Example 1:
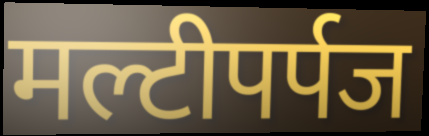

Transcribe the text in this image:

मल्टीपर्पज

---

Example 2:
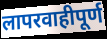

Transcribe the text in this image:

लापरवाहीपूर्ण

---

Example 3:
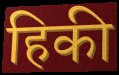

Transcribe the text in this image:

हिकी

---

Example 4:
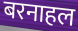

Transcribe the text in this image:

बरनाहल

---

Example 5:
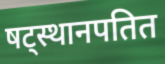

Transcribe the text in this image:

षट्स्थानपतित